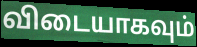
விடையாகவும்